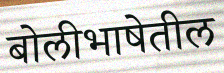
बोलीभाषेतील